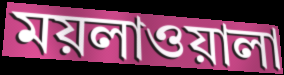
ময়লাওয়ালা